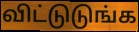
விட்டுடுங்க